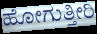
ಹೋಗುತ್ತೀರಿ